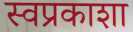
स्वप्रकाशा